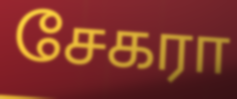
சேகரா